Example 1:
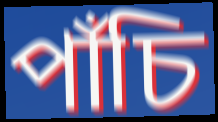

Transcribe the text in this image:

পাঁচি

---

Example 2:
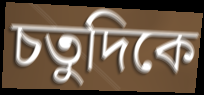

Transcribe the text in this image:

চতুদিকে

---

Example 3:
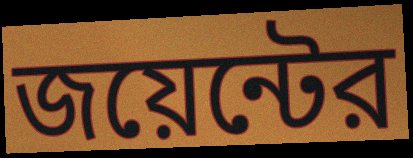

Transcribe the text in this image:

জয়েন্টের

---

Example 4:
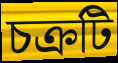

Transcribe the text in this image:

চক্রটি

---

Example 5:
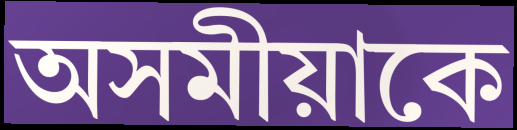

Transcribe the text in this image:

অসমীয়াকে